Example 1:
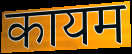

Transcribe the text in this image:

कायम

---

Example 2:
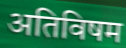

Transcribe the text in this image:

अतिविषम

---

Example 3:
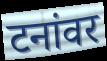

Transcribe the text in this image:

टनांवर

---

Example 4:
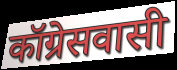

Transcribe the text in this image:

कॉग्रेसवासी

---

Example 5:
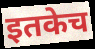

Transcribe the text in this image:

इतकेच